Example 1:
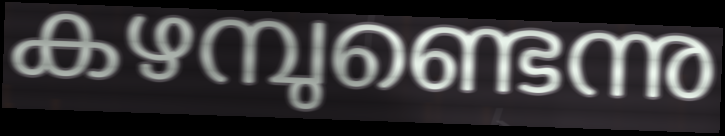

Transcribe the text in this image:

കഴമ്പുണ്ടെന്നു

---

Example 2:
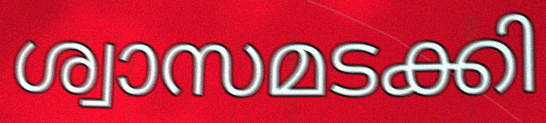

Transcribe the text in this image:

ശ്വാസമടക്കി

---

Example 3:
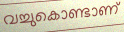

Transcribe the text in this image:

വച്ചുകൊണ്ടാണ്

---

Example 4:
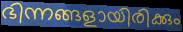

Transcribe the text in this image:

ഭിന്നങ്ങളായിരിക്കും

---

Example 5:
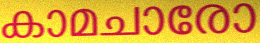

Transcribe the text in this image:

കാമചാരോ